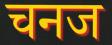
चनज